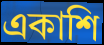
একাশি